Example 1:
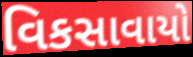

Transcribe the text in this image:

વિકસાવાયો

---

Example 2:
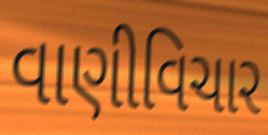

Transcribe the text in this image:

વાણીવિચાર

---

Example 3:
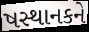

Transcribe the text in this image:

ષસ્થાનકને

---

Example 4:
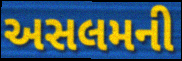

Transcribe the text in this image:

અસલમની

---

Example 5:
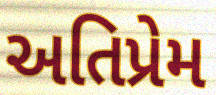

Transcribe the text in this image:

અતિપ્રેમ